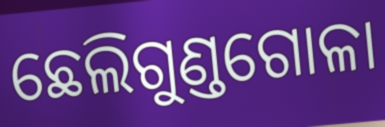
ଛେଲିଗୁଣ୍ଡଗୋଳା